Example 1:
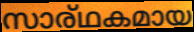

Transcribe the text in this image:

സാര്ഥകമായ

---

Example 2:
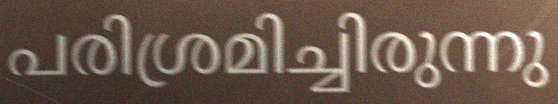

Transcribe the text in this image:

പരിശ്രമിച്ചിരുന്നു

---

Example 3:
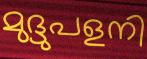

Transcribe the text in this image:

മുദ്ദുപളനി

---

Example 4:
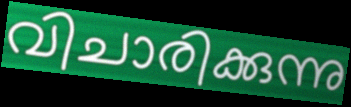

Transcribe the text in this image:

വിചാരിക്കുന്നു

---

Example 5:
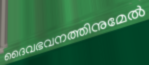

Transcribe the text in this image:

ദൈവഭവനത്തിനുമേൽ